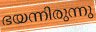
ഭയന്നിരുന്നു